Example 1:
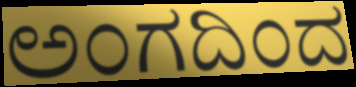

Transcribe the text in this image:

ಅಂಗದಿಂದ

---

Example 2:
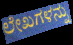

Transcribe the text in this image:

ಲೇಖಗಳನ್ನು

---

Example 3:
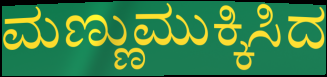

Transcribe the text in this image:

ಮಣ್ಣುಮುಕ್ಕಿಸಿದ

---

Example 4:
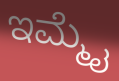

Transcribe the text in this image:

ಇಮ್ಮೈ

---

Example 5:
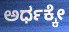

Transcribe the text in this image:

ಅರ್ಧಕ್ಕೇ